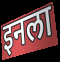
इनला